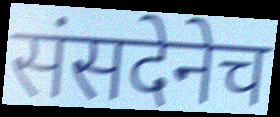
संसदेनेच